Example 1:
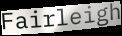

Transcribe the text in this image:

Fairleigh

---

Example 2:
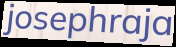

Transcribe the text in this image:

josephraja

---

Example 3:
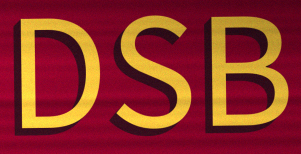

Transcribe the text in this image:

DSB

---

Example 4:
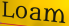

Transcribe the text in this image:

Loam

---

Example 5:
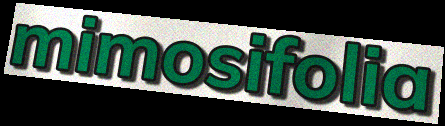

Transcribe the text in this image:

mimosifolia